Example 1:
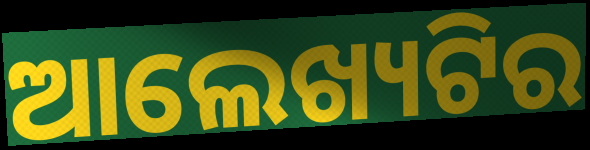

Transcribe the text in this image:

ଆଲେଖ୍ୟଟିର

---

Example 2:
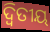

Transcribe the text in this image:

ଦ୍ୱିତୀୟ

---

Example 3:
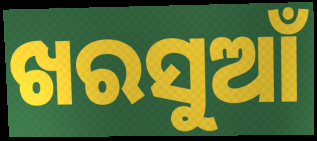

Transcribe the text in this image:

ଖରସୁଆଁ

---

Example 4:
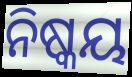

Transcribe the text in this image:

ନିଷ୍କୟ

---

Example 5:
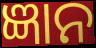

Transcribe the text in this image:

ଜ୍ଞାନ